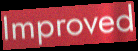
Improved